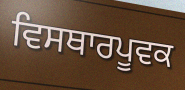
ਵਿਸਥਾਰਪੂਵਕ